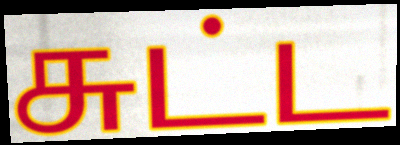
சுட்ட